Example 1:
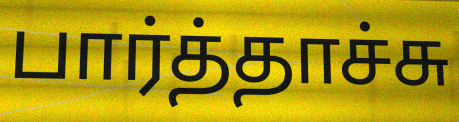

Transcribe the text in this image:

பார்த்தாச்சு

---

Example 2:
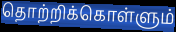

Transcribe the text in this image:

தொற்றிக்கொள்ளும்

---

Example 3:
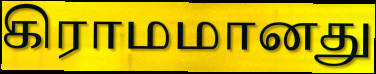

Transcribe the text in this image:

கிராமமானது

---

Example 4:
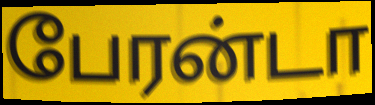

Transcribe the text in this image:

பேரன்டா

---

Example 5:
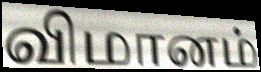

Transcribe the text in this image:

விமானம்